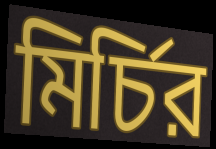
মির্চির